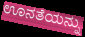
ಊನತೆಯನ್ನು